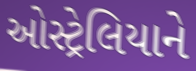
ઓસ્ટ્રેલિયાને